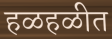
हळहळीत